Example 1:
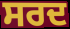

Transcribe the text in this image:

ਸਰਦ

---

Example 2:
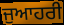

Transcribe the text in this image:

ਜੁਆਹਰੀ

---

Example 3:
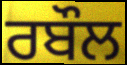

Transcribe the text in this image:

ਰਬੌਲ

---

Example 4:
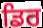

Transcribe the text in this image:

ਡਿਰ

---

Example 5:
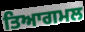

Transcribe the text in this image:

ਤਿਆਗਮਲ